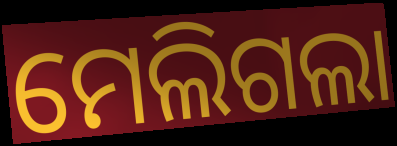
ମେଲିଗଲା